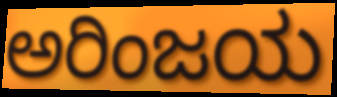
ಅರಿಂಜಯ